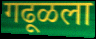
गढूळला